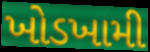
ખોડખામી